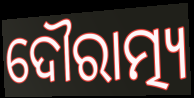
ଦୌରାତ୍ମ୍ୟ